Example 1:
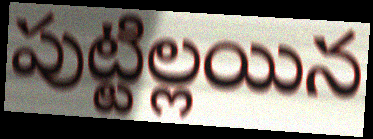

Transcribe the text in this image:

పుట్టిల్లయిన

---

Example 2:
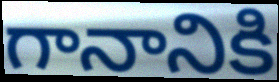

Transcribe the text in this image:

గానానికి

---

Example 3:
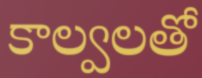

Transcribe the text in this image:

కాల్వలతో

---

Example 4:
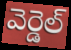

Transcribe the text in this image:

వెర్డెల్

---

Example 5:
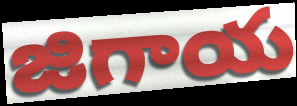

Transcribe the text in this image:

జిగాయ